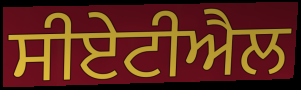
ਸੀਏਟੀਐਲ